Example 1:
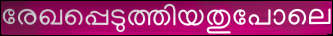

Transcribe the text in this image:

രേഖപ്പെടുത്തിയതുപോലെ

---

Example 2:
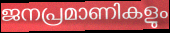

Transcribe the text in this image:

ജനപ്രമാണികളും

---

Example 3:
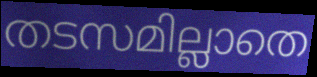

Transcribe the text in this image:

തടസമില്ലാതെ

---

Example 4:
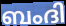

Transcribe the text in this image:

ബംദി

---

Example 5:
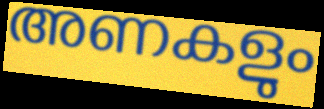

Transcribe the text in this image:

അണകളും